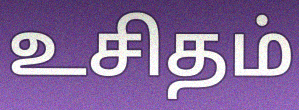
உசிதம்